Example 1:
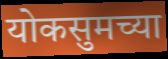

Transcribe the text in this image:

योकसुमच्या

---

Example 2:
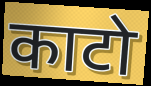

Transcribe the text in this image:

काटो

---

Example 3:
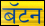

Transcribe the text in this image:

बॅटन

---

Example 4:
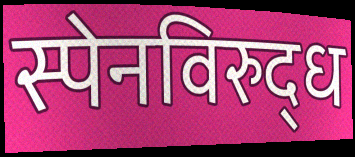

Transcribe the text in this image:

स्पेनविरुद्ध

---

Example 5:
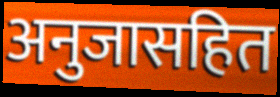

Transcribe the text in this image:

अनुजासहित